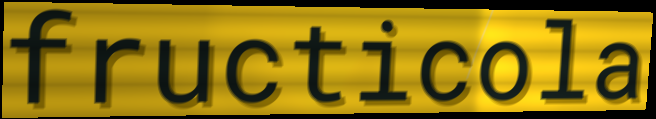
fructicola